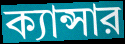
ক্যান্সার